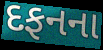
દફનના